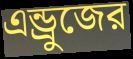
এন্ড্রুজের